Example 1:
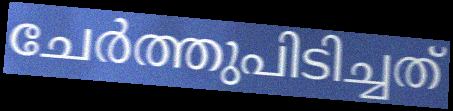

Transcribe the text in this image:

ചേർത്തുപിടിച്ചത്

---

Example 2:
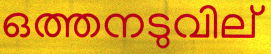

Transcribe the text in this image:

ഒത്തനടുവില്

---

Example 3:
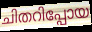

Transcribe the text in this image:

ചിതറിപ്പോയ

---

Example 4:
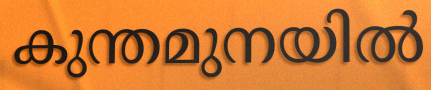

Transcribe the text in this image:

കുന്തമുനയിൽ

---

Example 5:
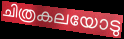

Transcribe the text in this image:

ചിത്രകലയോടു